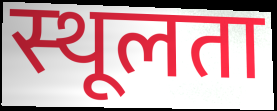
स्थूलता